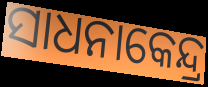
ସାଧନାକେନ୍ଦ୍ର